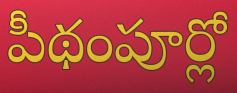
పీథంపూర్లో